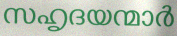
സഹൃദയന്മാർ